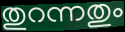
തുറന്നതും